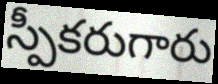
స్పీకరుగారు